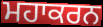
ਮਹਾਕਰਨ